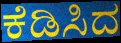
ಕೆಡಿಸಿದ